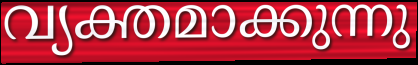
വ്യക്തമാക്കുന്നു